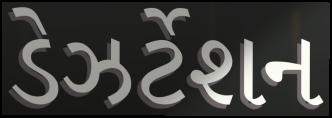
ડેઝર્ટેશન